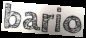
bario